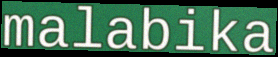
malabika